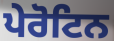
ਪੇਰੋਟਿਨ